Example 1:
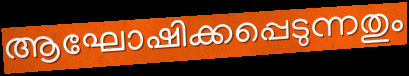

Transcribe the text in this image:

ആഘോഷിക്കപ്പെടുന്നതും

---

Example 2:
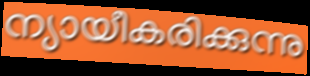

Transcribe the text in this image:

ന്യായീകരിക്കുന്നു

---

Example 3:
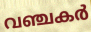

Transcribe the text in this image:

വഞ്ചകർ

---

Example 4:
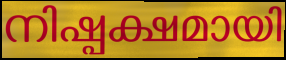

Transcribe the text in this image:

നിഷ്പക്ഷമായി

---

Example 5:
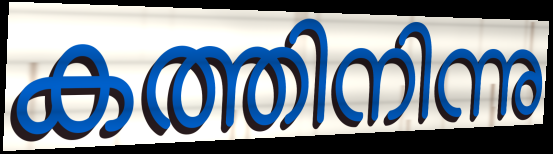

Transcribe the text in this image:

കത്തിനിന്നു